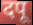
दपू